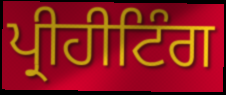
ਪ੍ਰੀਹੀਟਿੰਗ